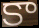
కా